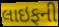
લાઇફની